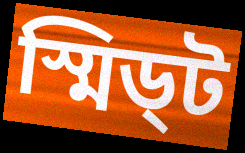
স্মিড্ট